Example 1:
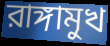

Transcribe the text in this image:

রাঙ্গামুখ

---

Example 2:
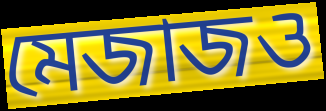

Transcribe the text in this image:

মেজাজও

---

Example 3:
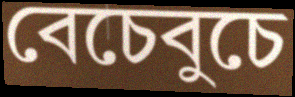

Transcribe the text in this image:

বেচেবুচে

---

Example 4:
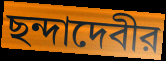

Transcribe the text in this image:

ছন্দাদেবীর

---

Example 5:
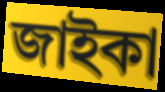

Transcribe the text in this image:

জাইকা